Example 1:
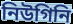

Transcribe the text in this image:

নিউগিনি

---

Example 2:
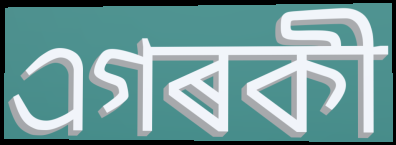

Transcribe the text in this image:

এগৰকী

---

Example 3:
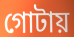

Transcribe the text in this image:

গোটায়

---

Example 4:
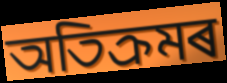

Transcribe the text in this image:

অতিক্ৰমৰ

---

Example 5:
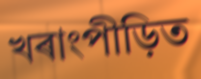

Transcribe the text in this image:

খৰাংপীড়িত